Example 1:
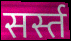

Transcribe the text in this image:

सर्स्त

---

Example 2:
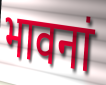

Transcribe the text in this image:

भावनां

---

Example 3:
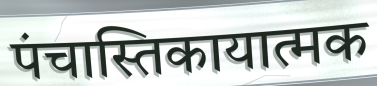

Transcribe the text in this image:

पंचास्तिकायात्मक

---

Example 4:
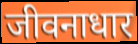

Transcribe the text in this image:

जीवनाधार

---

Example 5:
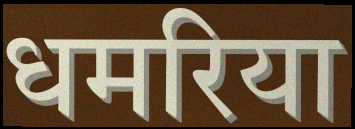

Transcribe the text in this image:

धमरिया